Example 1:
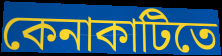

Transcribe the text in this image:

কেনাকাটিতে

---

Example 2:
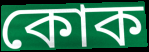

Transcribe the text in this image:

কোক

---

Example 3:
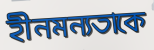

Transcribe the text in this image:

হীনমন্যতাকে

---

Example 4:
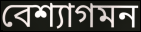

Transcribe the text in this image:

বেশ্যাগমন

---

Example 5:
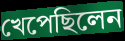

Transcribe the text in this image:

খেপেছিলেন